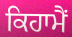
ਕਿਹਾਮੈਂ